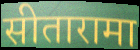
सीतारामा